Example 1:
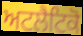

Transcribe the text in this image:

ਅਟਲੈਟਿਕੋ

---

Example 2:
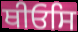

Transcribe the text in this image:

ਥੀਓਸਿ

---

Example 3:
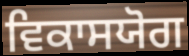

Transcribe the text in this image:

ਵਿਕਾਸਯੋਗ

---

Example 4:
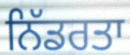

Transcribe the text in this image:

ਨਿੱਡਰਤਾ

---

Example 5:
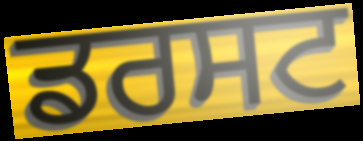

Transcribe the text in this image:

ਡਰਸਟ